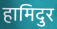
हामिदुर